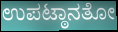
ಉಪಟ್ಠಾನತೋ